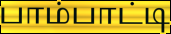
பாம்பாட்டி